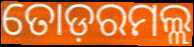
ତୋଡ଼ରମଲ୍ଲ